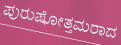
ಪುರುಷೋತ್ತಮರಾದ